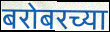
बरोबरच्या